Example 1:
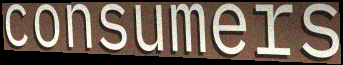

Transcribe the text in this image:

consumers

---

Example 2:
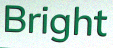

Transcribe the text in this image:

Bright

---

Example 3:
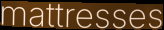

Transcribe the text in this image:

mattresses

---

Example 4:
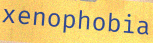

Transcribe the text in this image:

xenophobia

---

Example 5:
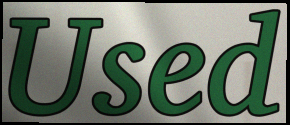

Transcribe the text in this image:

Used